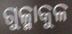
ଗୁଳ୍ମାକୁଳ